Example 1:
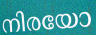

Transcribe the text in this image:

നിരയോ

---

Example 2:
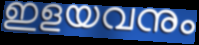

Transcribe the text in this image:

ഇളയവനും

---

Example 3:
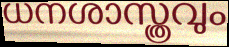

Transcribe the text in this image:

ധനശാസ്ത്രവും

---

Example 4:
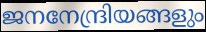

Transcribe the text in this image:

ജനനേന്ദ്രിയങ്ങളും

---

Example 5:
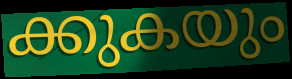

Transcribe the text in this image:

ക്കുകയും